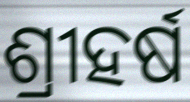
ଶ୍ରୀହର୍ଷ